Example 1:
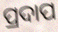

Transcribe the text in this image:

ପ୍ରଦାପ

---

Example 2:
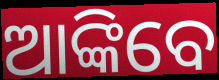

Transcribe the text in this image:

ଆଙ୍କିବେ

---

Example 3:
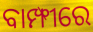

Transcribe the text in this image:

ବାମ୍ଫୀରେ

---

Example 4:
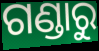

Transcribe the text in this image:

ଗଣ୍ଡାରୁ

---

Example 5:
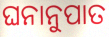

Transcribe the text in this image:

ଘନାନୁପାତ